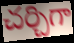
చర్చిగా